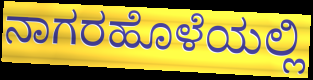
ನಾಗರಹೊಳೆಯಲ್ಲಿ